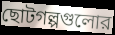
ছোটগল্পগুলোর